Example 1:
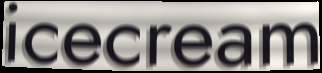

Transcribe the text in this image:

icecream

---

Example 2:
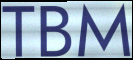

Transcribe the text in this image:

TBM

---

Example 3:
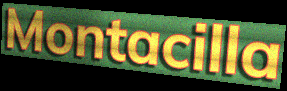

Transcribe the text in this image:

Montacilla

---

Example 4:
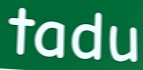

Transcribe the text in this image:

tadu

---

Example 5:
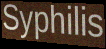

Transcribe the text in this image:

Syphilis